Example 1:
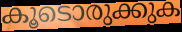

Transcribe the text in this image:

കൂടൊരുക്കുക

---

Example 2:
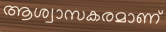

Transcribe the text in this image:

ആശ്വാസകരമാണ്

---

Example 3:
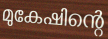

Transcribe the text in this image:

മുകേഷിന്റെ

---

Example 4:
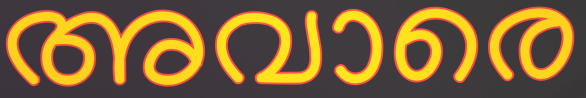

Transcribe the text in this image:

അവാരെ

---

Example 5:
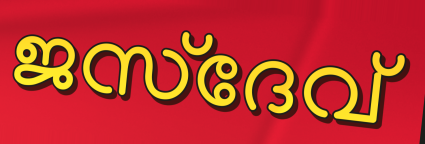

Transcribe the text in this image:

ജസ്ദേവ്